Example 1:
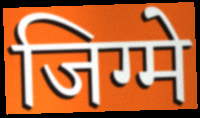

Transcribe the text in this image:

जिग्मे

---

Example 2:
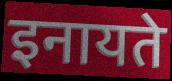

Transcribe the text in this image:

इनायते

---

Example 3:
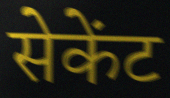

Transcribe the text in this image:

सेकेंट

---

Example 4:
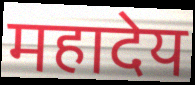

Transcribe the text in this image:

महादेय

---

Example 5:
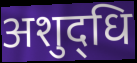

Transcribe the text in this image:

अशुद्धि